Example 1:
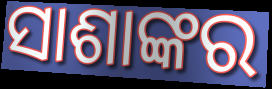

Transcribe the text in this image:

ସାଶାଙ୍କର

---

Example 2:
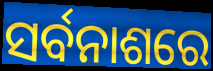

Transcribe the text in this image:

ସର୍ବନାଶରେ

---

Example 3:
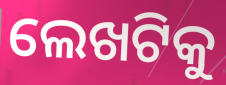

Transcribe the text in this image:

ଲେଖଟିକୁ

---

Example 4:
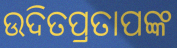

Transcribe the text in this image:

ଉଦିତପ୍ରତାପଙ୍କ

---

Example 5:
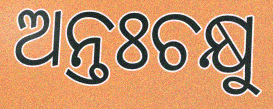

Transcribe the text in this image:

ଅନ୍ତଃଚକ୍ଷୁ